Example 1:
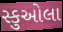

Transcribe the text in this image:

સ્કુઓલા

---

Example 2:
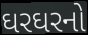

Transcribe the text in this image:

ઘરઘરનો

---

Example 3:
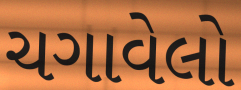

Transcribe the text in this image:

ચગાવેલો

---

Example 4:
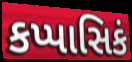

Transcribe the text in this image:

કપ્પાસિકં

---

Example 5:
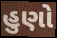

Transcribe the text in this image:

હુણો